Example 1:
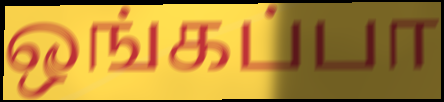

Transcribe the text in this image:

ஒங்கப்பா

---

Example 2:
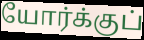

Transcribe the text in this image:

யோர்க்குப்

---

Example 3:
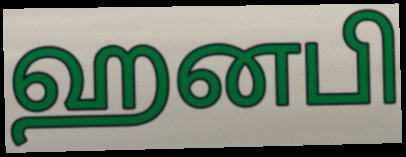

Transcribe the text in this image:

ஹனபி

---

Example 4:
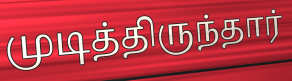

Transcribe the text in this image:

முடித்திருந்தார்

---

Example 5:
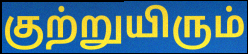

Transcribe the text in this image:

குற்றுயிரும்